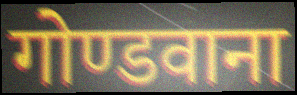
गोण्डवाना